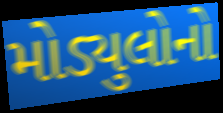
મોડ્યુલોનો